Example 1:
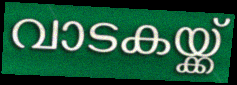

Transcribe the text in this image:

വാടകയ്ക്ക്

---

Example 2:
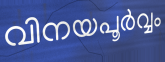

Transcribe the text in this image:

വിനയപൂർവ്വം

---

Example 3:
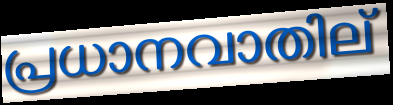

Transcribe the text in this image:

പ്രധാനവാതില്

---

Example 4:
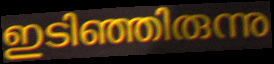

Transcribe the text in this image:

ഇടിഞ്ഞിരുന്നു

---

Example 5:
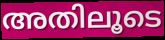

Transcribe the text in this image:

അതിലൂടെ